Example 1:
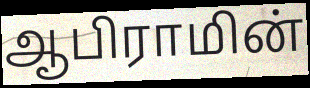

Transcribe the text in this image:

ஆபிராமின்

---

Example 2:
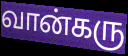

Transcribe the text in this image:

வான்கரு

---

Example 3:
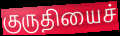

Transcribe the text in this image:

குருதியைச்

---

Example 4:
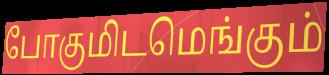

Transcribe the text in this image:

போகுமிடமெங்கும்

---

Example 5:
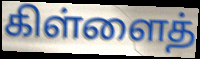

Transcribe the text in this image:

கிள்ளைத்